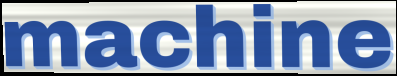
machine